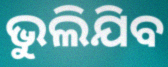
ଭୁଲିଯିବ